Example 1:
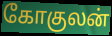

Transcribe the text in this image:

கோகுலன்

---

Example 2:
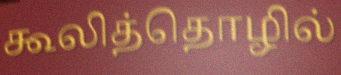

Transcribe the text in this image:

கூலித்தொழில்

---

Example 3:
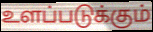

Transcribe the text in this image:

உளப்படுக்கும்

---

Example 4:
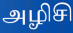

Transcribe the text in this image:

அழிசி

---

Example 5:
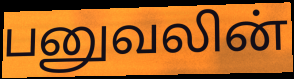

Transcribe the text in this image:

பனுவலின்